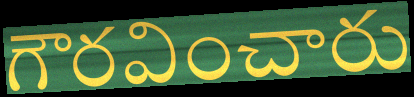
గౌరవించారు